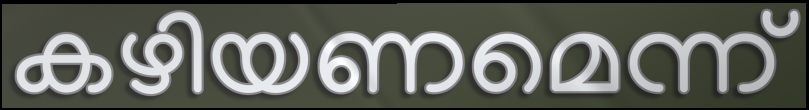
കഴിയണമെന്ന്